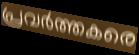
പ്രവർത്തകരെ